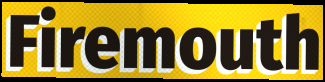
Firemouth